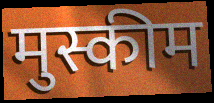
मुस्कीम